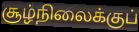
சூழ்நிலைக்குப்